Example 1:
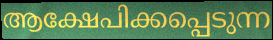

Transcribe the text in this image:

ആക്ഷേപിക്കപ്പെടുന്ന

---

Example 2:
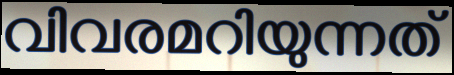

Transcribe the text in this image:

വിവരമറിയുന്നത്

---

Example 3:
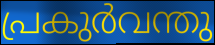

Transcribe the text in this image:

പ്രകുർവന്തു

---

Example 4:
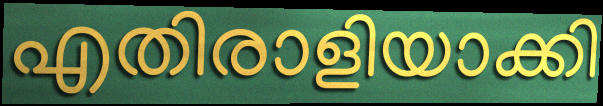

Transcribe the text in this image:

എതിരാളിയാക്കി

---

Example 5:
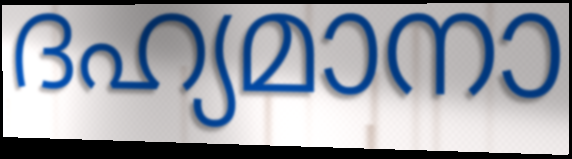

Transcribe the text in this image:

ദഹ്യമാനാ